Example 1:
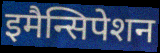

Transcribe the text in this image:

इमैन्सिपेशन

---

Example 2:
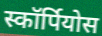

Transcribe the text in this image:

स्कॉर्पियोस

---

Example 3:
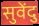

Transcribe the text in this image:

सुवेंदु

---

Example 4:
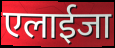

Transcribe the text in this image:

एलाईजा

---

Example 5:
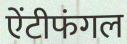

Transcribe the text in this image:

ऐंटीफंगल